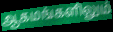
ஆகமங்களிலும்